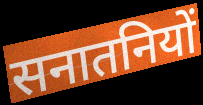
सनातनियों